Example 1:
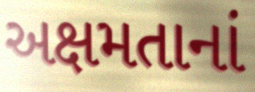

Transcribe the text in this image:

અક્ષમતાનાં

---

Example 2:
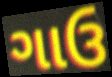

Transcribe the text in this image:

ગાઉ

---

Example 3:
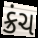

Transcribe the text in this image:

ક્રંચ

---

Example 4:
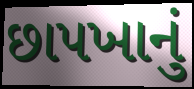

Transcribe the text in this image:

છાપખાનું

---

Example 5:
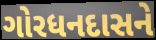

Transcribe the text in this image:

ગોરધનદાસને